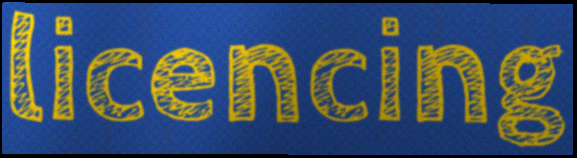
licencing